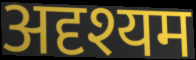
अदृश्यम